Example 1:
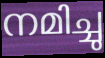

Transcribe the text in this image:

നമിച്ചു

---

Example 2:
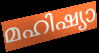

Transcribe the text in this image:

മഹിഷ്യാ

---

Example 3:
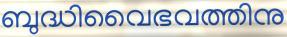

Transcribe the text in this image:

ബുദ്ധിവൈഭവത്തിനു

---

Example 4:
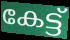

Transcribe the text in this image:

കേട്ട്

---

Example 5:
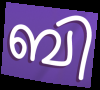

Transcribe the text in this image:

ബി